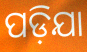
ପଡ଼ିଯା